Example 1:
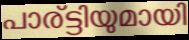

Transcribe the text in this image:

പാര്ട്ടിയുമായി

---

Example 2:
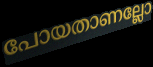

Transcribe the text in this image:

പോയതാണല്ലോ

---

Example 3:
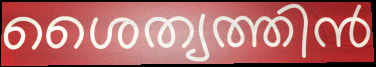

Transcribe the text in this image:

ശൈത്യത്തിൻ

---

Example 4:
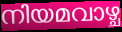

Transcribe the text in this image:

നിയമവാഴ്ച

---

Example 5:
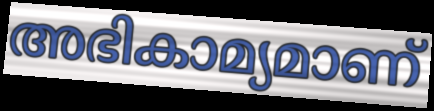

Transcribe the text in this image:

അഭികാമ്യമാണ്